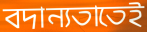
বদান্যতাতেই